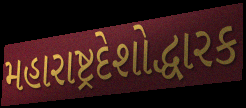
મહારાષ્ટ્રદેશોદ્ધારક